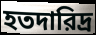
হতদারিদ্র